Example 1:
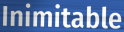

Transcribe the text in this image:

Inimitable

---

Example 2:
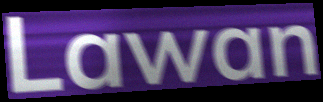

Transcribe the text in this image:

Lawan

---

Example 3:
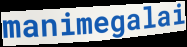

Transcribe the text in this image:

manimegalai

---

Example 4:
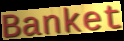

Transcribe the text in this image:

Banket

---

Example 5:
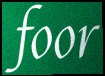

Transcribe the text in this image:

foor